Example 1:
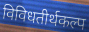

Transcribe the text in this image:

विविधतीर्थकल्प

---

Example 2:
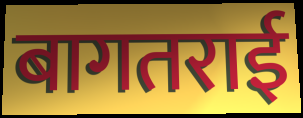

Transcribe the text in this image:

बागतराई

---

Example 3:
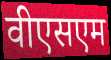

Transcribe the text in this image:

वीएसएम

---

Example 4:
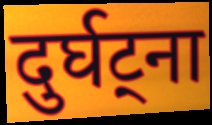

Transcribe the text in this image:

दुर्घट्ना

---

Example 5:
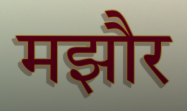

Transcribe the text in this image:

मझौर